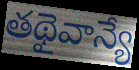
తథైవాన్యే